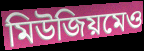
মিউজিয়মেও